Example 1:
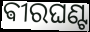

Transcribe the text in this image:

ଵୀରଘଣ୍ଟ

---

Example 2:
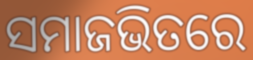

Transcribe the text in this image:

ସମାଜଭିତରେ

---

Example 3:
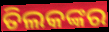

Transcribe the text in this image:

ତିଲକଙ୍କର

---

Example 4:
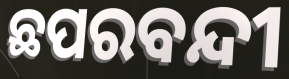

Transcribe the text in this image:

ଛପରବନ୍ଦୀ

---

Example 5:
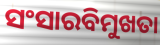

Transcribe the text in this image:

ସଂସାରବିମୁଖତା